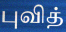
புவித்